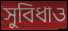
সুবিধাও